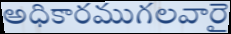
అధికారముగలవారై